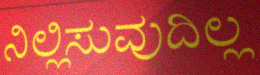
ನಿಲ್ಲಿಸುವುದಿಲ್ಲ